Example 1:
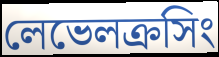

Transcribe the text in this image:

লেভেলক্রসিং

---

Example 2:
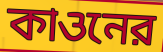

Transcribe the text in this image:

কাওনের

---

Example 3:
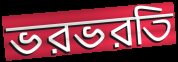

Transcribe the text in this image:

ভরভরতি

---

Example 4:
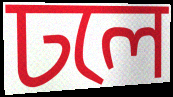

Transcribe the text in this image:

ঢলে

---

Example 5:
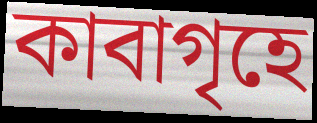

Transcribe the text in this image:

কাবাগৃহে